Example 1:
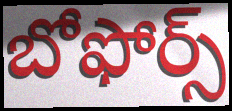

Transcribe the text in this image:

బోఫోర్స్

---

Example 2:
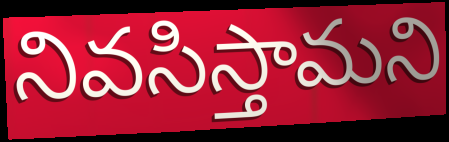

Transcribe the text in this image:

నివసిస్తామని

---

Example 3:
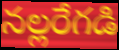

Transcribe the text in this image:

నల్లరేగడి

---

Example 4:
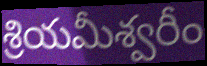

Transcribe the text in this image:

శ్రియమీశ్వరీం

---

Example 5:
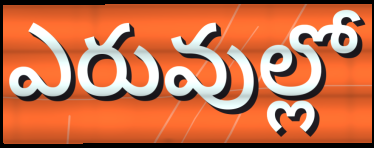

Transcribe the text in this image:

ఎరువుల్లో